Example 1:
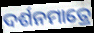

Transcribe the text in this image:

ଦର୍ଶନମାତ୍ରେ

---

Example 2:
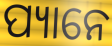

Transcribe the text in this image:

ପ୍ୟାନେ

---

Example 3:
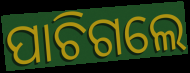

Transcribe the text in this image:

ପାଚିଗଲେ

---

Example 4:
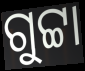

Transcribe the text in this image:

ଗୁଟ୍ଟା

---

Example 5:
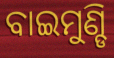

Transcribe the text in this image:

ବାଇମୁଣ୍ଡି